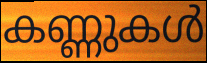
കണ്ണുകൾ